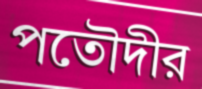
পতৌদীর